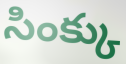
సింక్కు